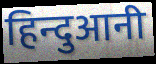
हिन्दुआनी